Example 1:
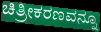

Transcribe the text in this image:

ಚಿತ್ರೀಕರಣವನ್ನೂ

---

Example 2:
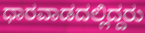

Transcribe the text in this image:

ಧಾರವಾಡದಲ್ಲಿದ್ದರು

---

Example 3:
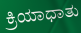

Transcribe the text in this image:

ಕ್ರಿಯಾಧಾತು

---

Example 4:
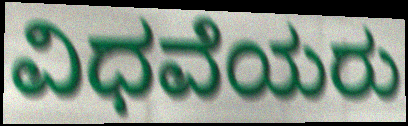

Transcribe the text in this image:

ವಿಧವೆಯರು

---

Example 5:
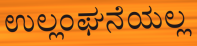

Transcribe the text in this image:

ಉಲ್ಲಂಘನೆಯಲ್ಲ